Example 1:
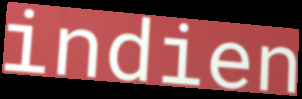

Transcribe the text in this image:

indien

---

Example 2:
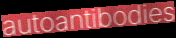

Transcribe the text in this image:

autoantibodies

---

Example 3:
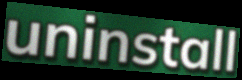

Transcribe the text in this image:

uninstall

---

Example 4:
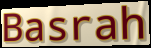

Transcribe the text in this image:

Basrah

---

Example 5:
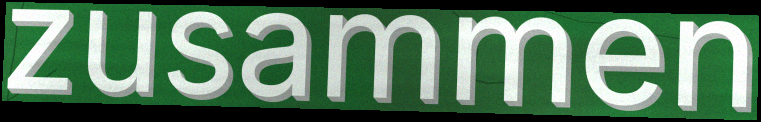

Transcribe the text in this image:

zusammen